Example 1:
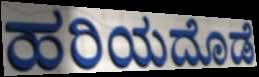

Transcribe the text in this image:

ಹರಿಯದೊಡೆ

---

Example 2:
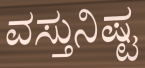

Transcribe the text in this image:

ವಸ್ತುನಿಷ್ಟ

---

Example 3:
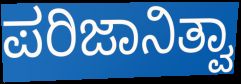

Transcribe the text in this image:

ಪರಿಜಾನಿತ್ವಾ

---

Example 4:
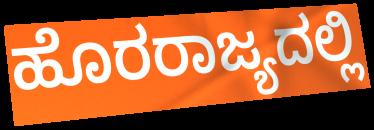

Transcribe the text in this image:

ಹೊರರಾಜ್ಯದಲ್ಲಿ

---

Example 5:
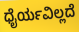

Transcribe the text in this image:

ಧೈರ್ಯವಿಲ್ಲದೆ